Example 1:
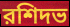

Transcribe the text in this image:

রশিদভ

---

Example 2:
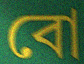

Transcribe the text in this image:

বো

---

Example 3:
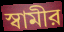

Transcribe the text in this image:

স্বামীর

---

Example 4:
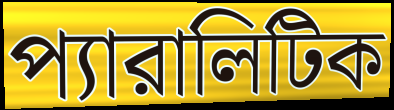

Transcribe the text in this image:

প্যারালিটিক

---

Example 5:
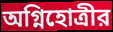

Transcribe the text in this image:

অগ্নিহোত্রীর